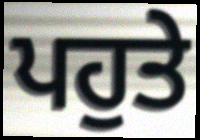
ਪਹੁਤੇ